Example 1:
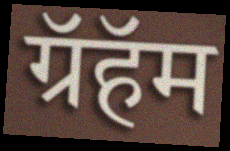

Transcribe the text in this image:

ग्रॅहॅम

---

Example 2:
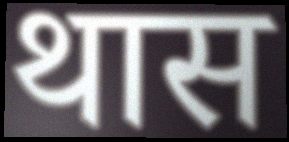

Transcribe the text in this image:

थास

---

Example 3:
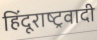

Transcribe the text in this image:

हिंदूराष्ट्रवादी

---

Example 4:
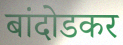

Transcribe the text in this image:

बांदोडकर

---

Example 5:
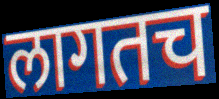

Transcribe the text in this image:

लागतच